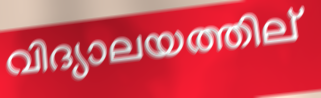
വിദ്യാലയത്തില്